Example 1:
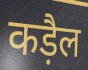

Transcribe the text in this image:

कड़ैल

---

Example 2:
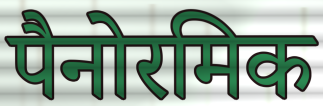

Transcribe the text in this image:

पैनोरमिक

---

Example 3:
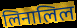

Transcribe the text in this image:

लिनालिल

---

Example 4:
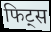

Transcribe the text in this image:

फिट्स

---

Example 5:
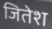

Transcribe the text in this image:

जितेश